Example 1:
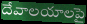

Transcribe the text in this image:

దేవాలయాలపై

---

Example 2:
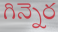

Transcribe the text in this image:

గిన్నెర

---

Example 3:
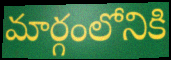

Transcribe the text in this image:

మార్గంలోనికి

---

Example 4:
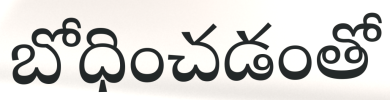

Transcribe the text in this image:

బోధించడంతో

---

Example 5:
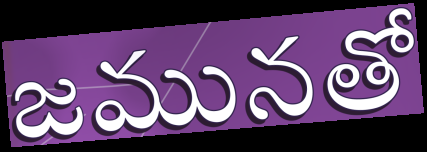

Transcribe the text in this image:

జమునతో